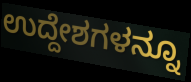
ಉದ್ದೇಶಗಳನ್ನೂ